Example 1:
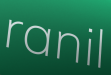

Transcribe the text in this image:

ranil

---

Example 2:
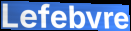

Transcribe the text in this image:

Lefebvre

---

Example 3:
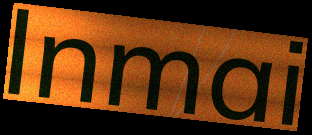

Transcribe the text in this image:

Inmai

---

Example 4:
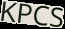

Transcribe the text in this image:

KPCS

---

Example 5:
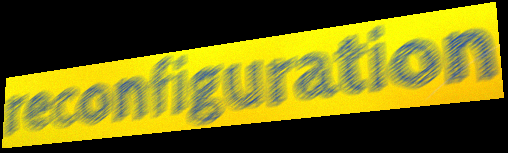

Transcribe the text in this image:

reconfiguration